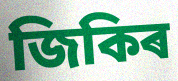
জিকিৰ